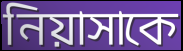
নিয়াসাকে